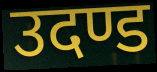
उदण्ड